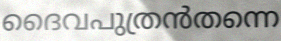
ദൈവപുത്രൻതന്നെ